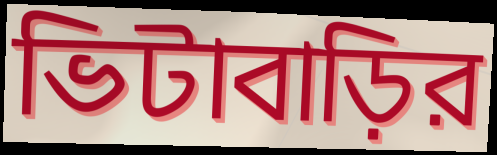
ভিটাবাড়ির